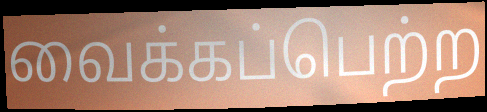
வைக்கப்பெற்ற